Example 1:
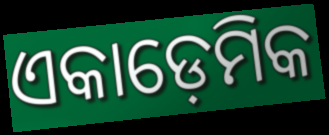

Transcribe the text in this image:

ଏକାଡ଼େମିକ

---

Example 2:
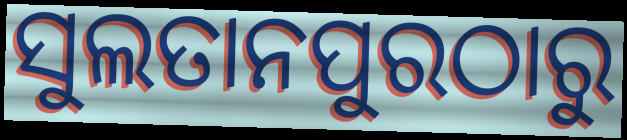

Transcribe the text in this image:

ସୁଲତାନପୁରଠାରୁ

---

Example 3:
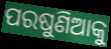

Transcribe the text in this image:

ପରଷୁଣିଆକୁ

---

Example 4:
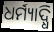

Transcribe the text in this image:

ଧର୍ମ୍ୟାଦ୍ଧି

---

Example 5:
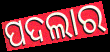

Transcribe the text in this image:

ପଦଲାର